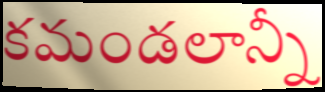
కమండలాన్నీ